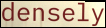
densely